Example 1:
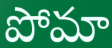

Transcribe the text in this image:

పోమా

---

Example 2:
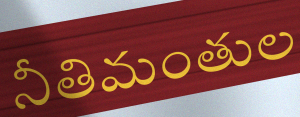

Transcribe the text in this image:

నీతిమంతుల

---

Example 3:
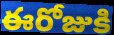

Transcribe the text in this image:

ఈరోజుకి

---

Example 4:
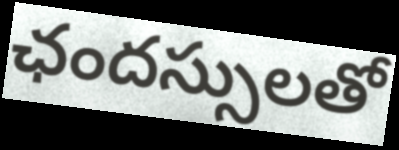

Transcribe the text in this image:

ఛందస్సులతో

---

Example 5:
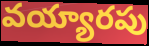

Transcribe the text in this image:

వయ్యారపు